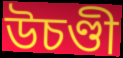
উচণ্ডী